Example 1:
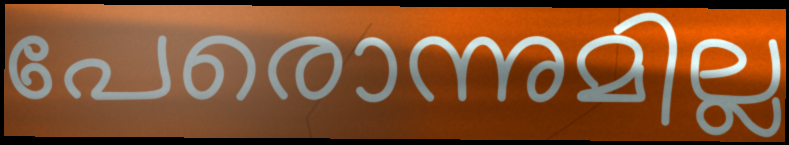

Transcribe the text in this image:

പേരൊന്നുമില്ല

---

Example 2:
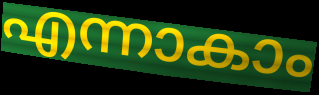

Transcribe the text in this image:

എന്നാകാം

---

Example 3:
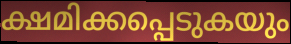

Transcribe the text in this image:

ക്ഷമിക്കപ്പെടുകയും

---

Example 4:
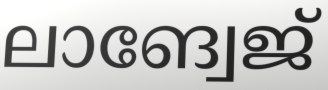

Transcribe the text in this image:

ലാങ്വേജ്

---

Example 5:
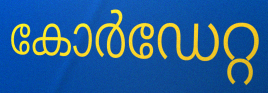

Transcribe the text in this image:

കോർഡേറ്റ